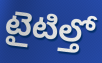
టైటిల్తో